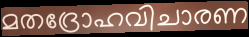
മതദ്രോഹവിചാരണ